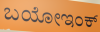
ಬಯೋಇಂಕ್